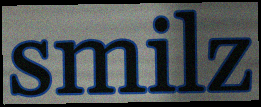
smilz